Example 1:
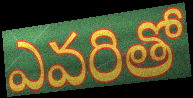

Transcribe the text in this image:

ఎవరితో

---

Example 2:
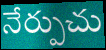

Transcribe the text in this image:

నేర్పుచు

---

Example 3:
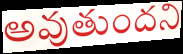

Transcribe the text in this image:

అవుతుందని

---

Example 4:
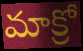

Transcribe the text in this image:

మాక్రో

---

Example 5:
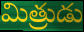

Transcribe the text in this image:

మిత్రుడు